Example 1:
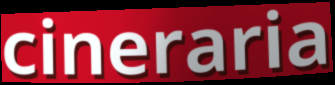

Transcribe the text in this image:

cineraria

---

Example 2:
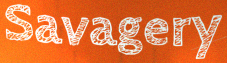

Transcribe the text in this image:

Savagery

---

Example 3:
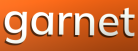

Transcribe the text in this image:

garnet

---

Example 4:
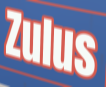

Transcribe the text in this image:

Zulus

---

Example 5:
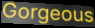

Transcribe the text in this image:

Gorgeous